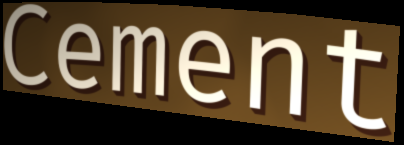
Cement